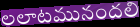
లలాటమునందలి